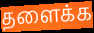
தளைக்க